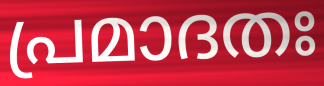
പ്രമാദതഃ